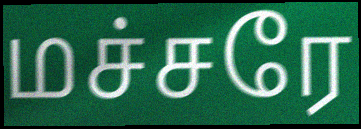
மச்சரே